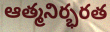
ఆత్మనిర్భరత